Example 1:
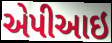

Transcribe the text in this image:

એપીઆઇ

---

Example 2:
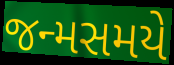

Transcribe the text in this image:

જન્મસમયે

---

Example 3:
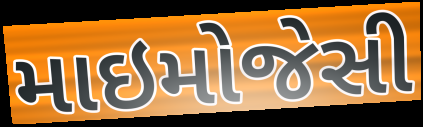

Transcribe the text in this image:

માઇમોજેસી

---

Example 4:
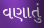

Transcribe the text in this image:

વણાતું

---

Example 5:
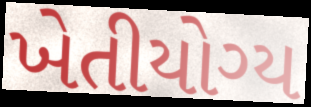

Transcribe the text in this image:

ખેતીયોગ્ય